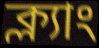
ক্ল্যাং